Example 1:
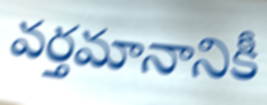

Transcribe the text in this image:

వర్తమానానికీ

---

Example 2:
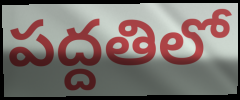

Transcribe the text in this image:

పద్దతిలో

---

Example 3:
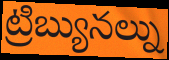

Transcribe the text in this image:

ట్రిబ్యునల్ను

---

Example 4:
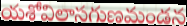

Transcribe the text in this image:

యశోవిలాసగుణమండన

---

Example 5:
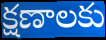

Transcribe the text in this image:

క్షణాలకు